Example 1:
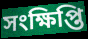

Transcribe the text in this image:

সংক্ষিপ্তি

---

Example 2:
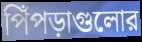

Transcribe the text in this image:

পিঁপড়াগুলোর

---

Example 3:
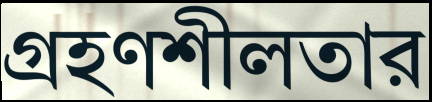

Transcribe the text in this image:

গ্রহণশীলতার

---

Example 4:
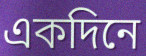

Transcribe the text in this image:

একদিনে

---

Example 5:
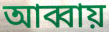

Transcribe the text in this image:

আব্বায়